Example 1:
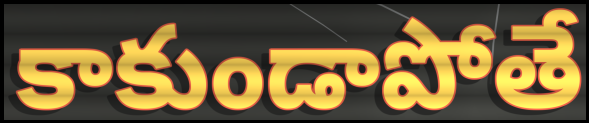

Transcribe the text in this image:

కాకుండాపోతే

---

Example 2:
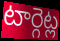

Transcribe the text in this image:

టార్గెట్ల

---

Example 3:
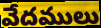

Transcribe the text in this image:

వేదములు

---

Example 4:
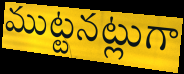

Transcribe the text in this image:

ముట్టనట్లుగా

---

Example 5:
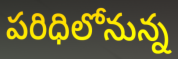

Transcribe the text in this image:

పరిధిలోనున్న